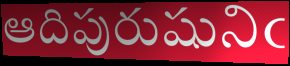
ఆదిపురుషునిఁ